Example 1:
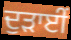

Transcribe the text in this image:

ਦੁੜਾਈਂ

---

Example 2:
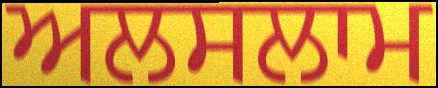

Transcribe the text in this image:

ਅਲਸਲਾਮ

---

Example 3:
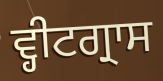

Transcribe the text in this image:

ਵ੍ਹੀਟਗ੍ਰਾਸ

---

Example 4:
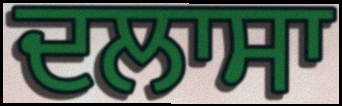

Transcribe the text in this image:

ਦਲਾਸਾ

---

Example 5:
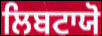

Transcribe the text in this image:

ਲਿਬਟਾਯੋ